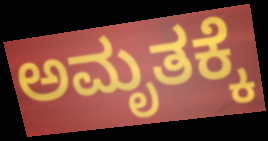
ಅಮೃತಕ್ಕೆ